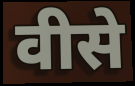
वीसे